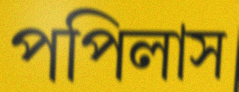
পপিলাস